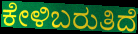
ಕೇಳಿಬರುತಿದೆ